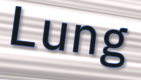
Lung